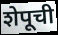
शेपूची